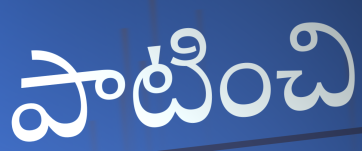
పాటించి